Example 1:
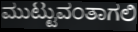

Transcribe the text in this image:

ಮುಟ್ಟುವಂತಾಗಲಿ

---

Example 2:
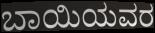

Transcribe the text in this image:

ಬಾಯಿಯವರ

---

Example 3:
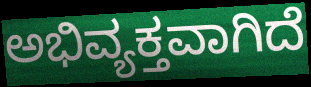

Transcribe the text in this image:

ಅಭಿವ್ಯಕ್ತವಾಗಿದೆ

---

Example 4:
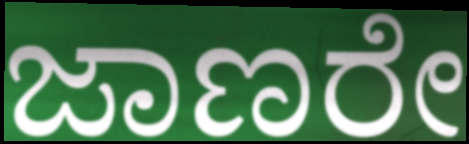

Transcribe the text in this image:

ಜಾಣರೇ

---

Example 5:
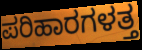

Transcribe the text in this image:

ಪರಿಹಾರಗಳತ್ತ